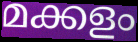
മക്കളം